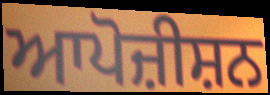
ਆਪੋਜ਼ੀਸ਼ਨ